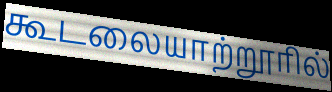
கூடலையாற்றூரில்